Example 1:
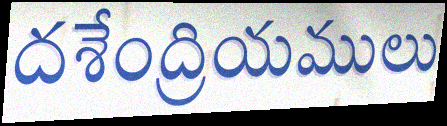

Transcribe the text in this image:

దశేంద్రియములు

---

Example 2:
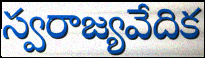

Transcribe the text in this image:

స్వరాజ్యవేదిక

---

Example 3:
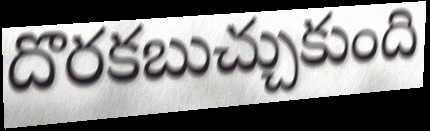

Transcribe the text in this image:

దొరకబుచ్చుకుంది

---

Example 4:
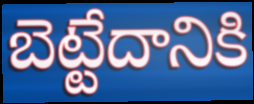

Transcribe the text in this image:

బెట్టేదానికి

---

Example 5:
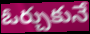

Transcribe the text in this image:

ఓర్చుకునే